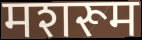
मशरूम